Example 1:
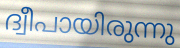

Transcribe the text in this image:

ദ്വീപായിരുന്നു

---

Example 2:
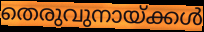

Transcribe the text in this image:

തെരുവുനായ്ക്കൾ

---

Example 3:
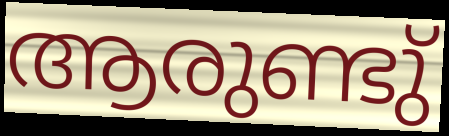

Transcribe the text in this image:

ആരുണ്ടു്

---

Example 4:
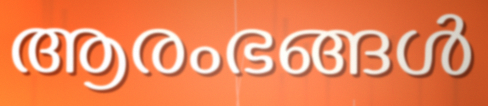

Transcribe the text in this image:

ആരംഭങ്ങൾ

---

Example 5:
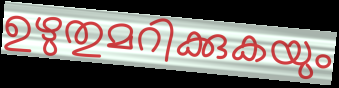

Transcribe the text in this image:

ഉഴുതുമറിക്കുകയും